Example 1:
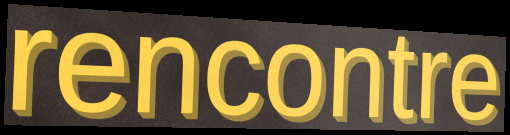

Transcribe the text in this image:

rencontre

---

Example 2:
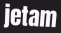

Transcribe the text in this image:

jetam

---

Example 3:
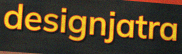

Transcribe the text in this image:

designjatra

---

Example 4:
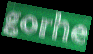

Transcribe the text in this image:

gorhe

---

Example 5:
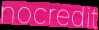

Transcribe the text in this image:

nocredit